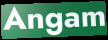
Angam